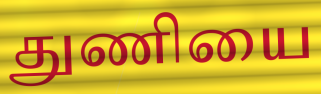
துணியை